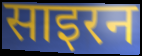
साइरन